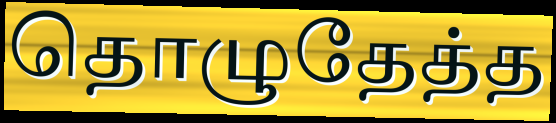
தொழுதேத்த